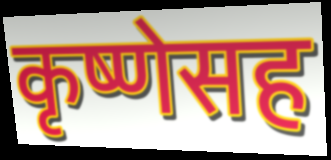
कृष्णेसह